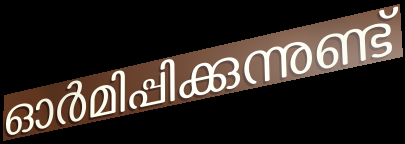
ഓർമിപ്പിക്കുന്നുണ്ട്